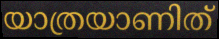
യാത്രയാണിത്